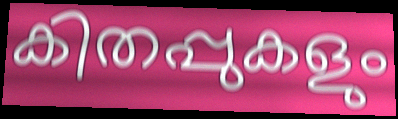
കിതപ്പുകളും